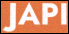
JAPI